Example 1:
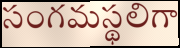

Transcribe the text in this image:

సంగమస్థలిగా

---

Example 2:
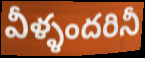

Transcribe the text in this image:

వీళ్ళందరినీ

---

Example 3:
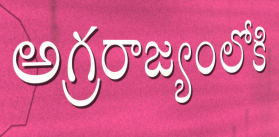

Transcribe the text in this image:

అగ్రరాజ్యంలోకి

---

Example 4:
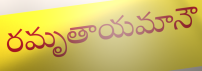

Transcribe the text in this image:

రమృతాయమానౌ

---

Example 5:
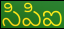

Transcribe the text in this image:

సిపిఐ